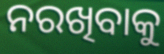
ନରଖିବାକୁ